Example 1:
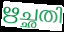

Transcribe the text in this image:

ഋച്ഛതി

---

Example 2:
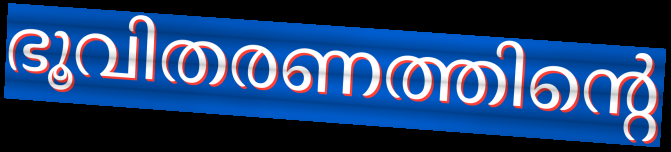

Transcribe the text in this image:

ഭൂവിതരണത്തിന്റെ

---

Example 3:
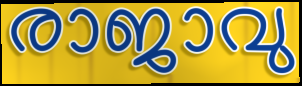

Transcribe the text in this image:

രാജാവു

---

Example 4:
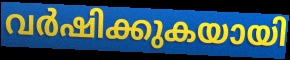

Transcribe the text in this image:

വർഷിക്കുകയായി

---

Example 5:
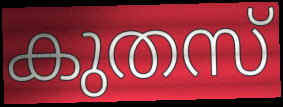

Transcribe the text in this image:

കുതസ്